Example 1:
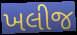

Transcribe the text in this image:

ખલીજ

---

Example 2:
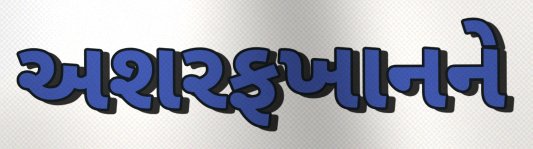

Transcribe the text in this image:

અશરફખાનને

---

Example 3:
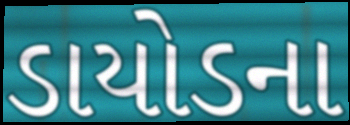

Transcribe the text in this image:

ડાયોડના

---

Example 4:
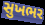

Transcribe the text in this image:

સુખભર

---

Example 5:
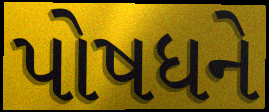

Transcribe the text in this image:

પોષધને